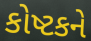
કોષ્ટકને